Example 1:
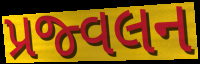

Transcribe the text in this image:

પ્રજ્વલન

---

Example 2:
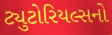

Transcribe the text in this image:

ટ્યુટોરિયલ્સનો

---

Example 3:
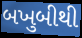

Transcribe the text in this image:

બખુબીથી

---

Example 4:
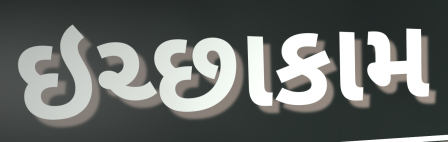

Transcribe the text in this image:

ઇચ્છાકામ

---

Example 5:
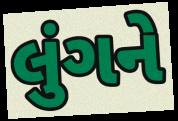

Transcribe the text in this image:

લુંગને